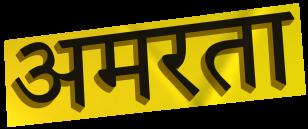
अमरता